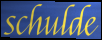
schulde